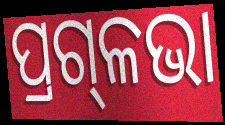
ପ୍ରଗ୍‌ଳଭା